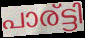
പാര്ട്ടി